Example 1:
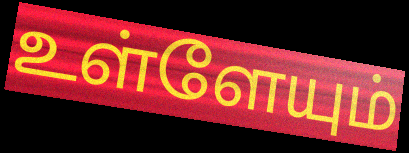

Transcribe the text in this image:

உள்ளேயும்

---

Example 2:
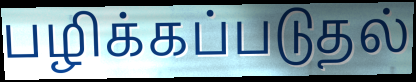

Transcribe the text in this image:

பழிக்கப்படுதல்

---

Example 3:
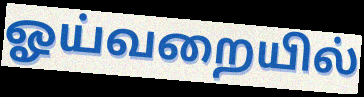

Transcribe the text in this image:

ஓய்வறையில்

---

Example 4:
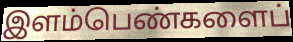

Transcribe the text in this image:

இளம்பெண்களைப்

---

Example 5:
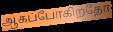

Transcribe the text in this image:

ஆகப்போகிறதோ